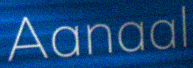
Aanaal